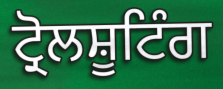
ਟ੍ਰੋਲਸ਼ੂਟਿੰਗ